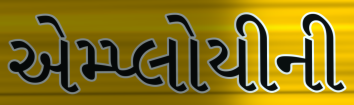
એમ્પ્લોયીની